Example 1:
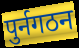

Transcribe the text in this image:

पुर्नगठन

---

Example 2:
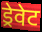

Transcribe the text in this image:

ड्रेवेट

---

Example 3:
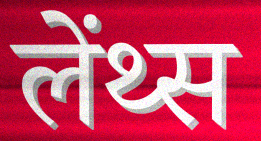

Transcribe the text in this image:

लेंथ्स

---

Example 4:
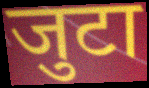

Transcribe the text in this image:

जुटा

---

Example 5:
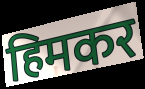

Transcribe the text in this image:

हिमकर